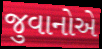
જુવાનોએ